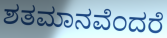
ಶತಮಾನವೆಂದರೆ